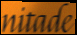
nitade